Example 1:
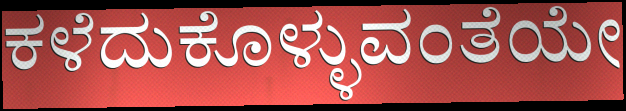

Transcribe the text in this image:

ಕಳೆದುಕೊಳ್ಳುವಂತೆಯೇ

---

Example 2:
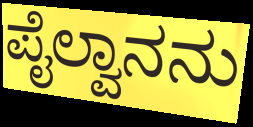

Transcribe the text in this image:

ಪೈಲ್ವಾನನು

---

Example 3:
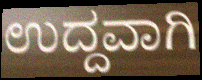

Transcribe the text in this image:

ಉದ್ದವಾಗಿ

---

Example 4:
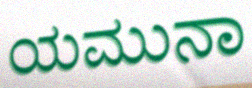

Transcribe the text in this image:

ಯಮುನಾ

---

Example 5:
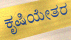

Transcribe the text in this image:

ಕೃಷಿಯೇತರ